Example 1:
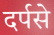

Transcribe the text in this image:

दर्पसे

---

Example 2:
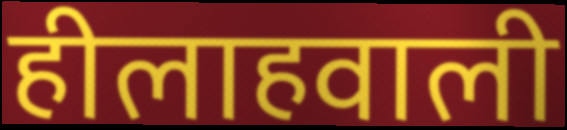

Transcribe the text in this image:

हीलाहवाली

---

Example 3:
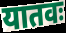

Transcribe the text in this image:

यातवः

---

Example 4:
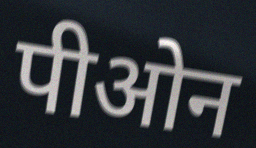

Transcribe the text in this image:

पीओन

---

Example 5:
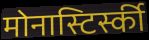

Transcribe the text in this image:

मोनास्टिर्स्की